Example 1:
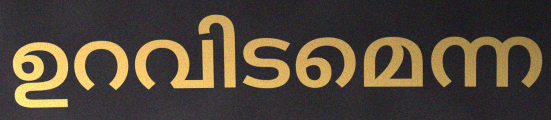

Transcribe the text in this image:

ഉറവിടമെന്ന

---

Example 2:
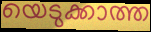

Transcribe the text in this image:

യെടുക്കാത്ത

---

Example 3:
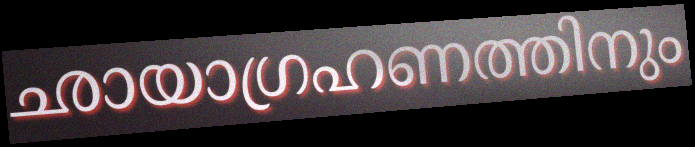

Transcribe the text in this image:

ഛായാഗ്രഹണത്തിനും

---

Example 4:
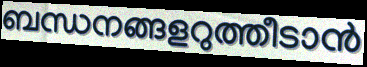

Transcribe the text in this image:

ബന്ധനങ്ങളറുത്തീടാൻ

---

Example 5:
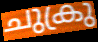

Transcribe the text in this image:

ചുക്രു